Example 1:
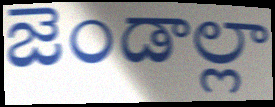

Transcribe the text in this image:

జెండాల్లా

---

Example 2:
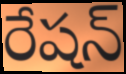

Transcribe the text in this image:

రేషన్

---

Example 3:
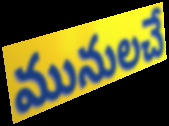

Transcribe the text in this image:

మునులచే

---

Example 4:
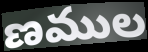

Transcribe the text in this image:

ణముల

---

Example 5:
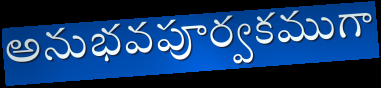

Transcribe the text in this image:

అనుభవపూర్వకముగా